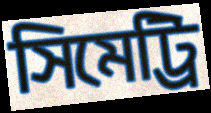
সিমেট্রি